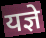
यज्ञे